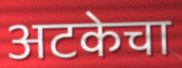
अटकेचा